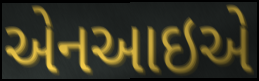
એનઆઇએ